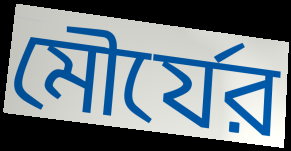
মৌর্যের